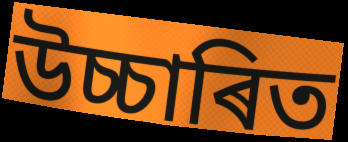
উচ্চাৰিত